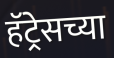
हॅट्रेसच्या